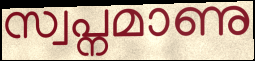
സ്വപ്നമാണു